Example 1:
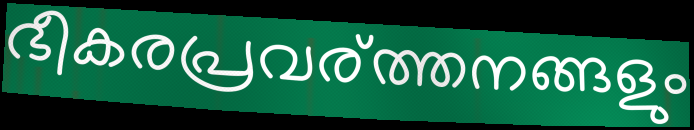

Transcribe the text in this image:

ഭീകരപ്രവര്ത്തനങ്ങളും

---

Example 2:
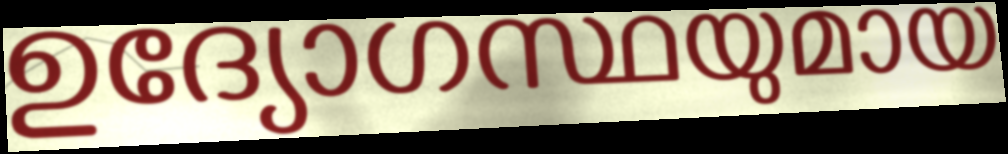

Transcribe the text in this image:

ഉദ്യോഗസ്ഥയുമായ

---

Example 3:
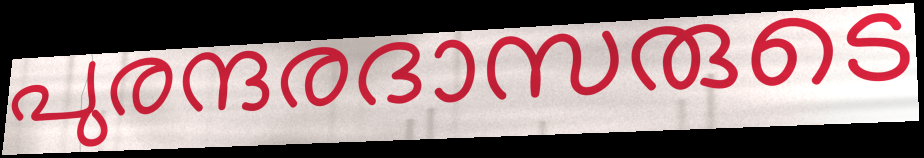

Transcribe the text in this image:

പുരന്ദരദാസരുടെ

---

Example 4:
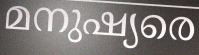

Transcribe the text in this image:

മനുഷ്യരെ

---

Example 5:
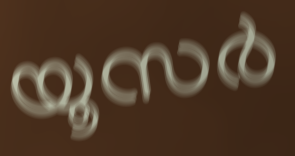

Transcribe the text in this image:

യൂസർ